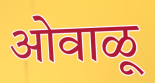
ओवाळू